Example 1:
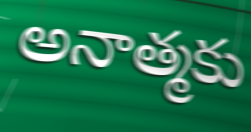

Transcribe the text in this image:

అనాత్మకు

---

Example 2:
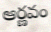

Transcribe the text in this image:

ఆర్ణవం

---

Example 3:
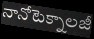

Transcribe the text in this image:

నానోటెక్నాలజీ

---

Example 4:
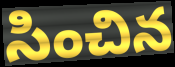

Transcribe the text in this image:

సించిన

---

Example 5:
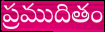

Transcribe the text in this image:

ప్రముదితం